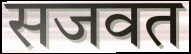
सजवत